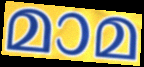
മാമ